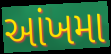
આંખમા